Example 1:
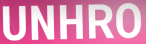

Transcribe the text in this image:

UNHRO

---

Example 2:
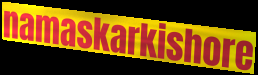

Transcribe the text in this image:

namaskarkishore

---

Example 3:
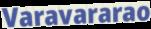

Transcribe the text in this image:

Varavararao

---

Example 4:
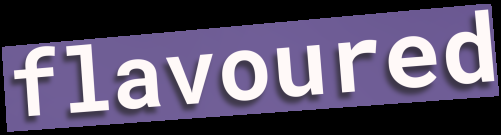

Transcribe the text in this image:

flavoured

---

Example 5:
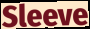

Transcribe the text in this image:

Sleeve